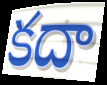
కదా